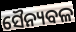
ସୈନ୍ୟବଳ